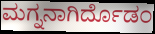
ಮಗ್ನನಾಗಿರ್ದೊಡಂ